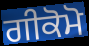
ਗੀਕੋਮੋ